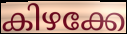
കിഴക്കേ